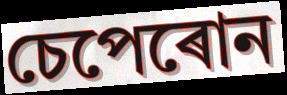
চেপেৰোন